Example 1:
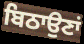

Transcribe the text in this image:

ਬਿਠਾਉਣਾਂ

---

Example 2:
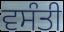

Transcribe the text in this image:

ਵਸੰਤੀ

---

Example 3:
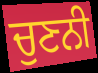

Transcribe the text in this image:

ਚੁਣਨੀ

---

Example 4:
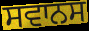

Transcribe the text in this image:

ਸਵਾਨਸ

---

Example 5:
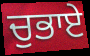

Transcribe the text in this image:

ਚੁਭਾਏ